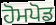
ਹੋਮਪੋਡ